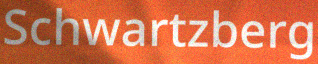
Schwartzberg